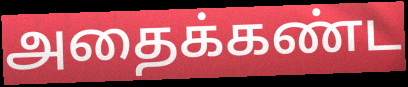
அதைக்கண்ட